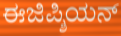
ಈಜಿಪ್ಶಿಯನ್